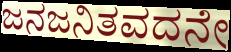
ಜನಜನಿತವದನೇ